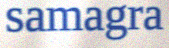
samagra